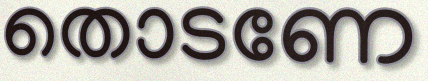
തൊടണേ